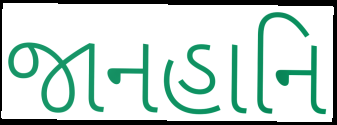
જાનહાનિ